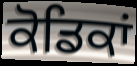
ਕੋਡਿਕਾਂ